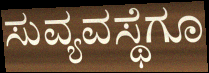
ಸುವ್ಯವಸ್ಥೆಗೂ